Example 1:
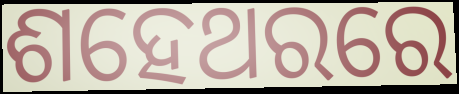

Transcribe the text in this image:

ଶହେଥରରେ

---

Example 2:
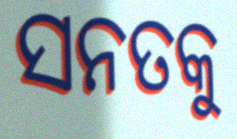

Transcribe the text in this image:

ସନତକୁ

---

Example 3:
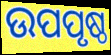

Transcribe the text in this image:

ଉପପୃଷ୍ଠ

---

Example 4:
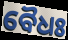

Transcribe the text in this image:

ବୈଧଃ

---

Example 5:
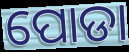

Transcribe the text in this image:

ପୋଡା